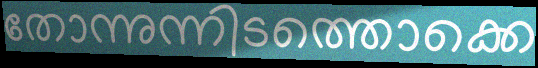
തോന്നുന്നിടത്തൊക്കെ